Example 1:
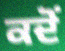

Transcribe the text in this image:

ਕਦੋਂ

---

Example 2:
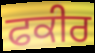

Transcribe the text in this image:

ਫਕੀਰ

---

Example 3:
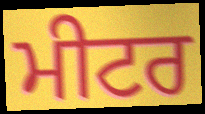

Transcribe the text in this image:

ਮੀਟਰ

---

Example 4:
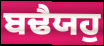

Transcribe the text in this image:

ਬਢੈਯਹੁ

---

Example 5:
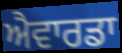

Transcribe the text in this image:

ਐਵਾਰਡਾ